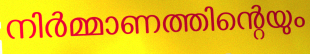
നിർമ്മാണത്തിന്റെയും